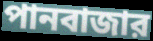
পানবাজার